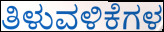
ತಿಳುವಳಿಕೆಗಳ